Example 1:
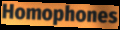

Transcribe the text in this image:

Homophones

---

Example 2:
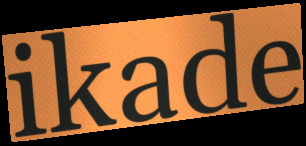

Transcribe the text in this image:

ikade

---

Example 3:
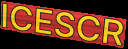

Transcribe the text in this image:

ICESCR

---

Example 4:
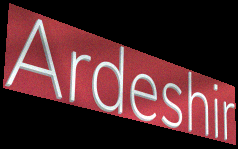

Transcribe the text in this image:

Ardeshir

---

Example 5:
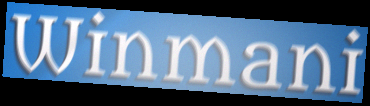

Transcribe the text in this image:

Winmani